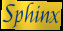
Sphinx